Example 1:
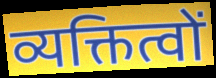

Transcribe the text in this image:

व्यक्तित्वों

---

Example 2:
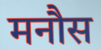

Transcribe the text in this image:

मनौस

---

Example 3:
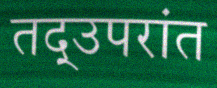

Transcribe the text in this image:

तद्उपरांत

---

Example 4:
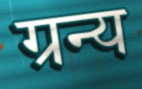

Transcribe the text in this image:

ग्रन्य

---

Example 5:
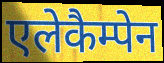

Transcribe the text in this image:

एलेकैम्पेन